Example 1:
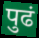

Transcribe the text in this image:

पुढं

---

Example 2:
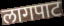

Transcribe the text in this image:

लागपाट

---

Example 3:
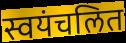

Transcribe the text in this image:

स्वयंचलित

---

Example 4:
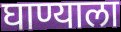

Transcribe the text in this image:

घाण्याला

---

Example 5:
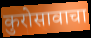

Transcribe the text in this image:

कुरोसावाचा